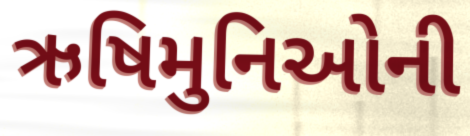
ઋષિમુનિઓની